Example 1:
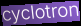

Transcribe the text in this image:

cyclotron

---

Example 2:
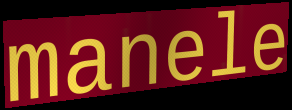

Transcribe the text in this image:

manele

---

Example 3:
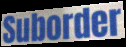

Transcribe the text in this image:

Suborder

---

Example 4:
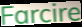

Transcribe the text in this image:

Farcire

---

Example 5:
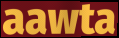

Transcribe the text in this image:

aawta